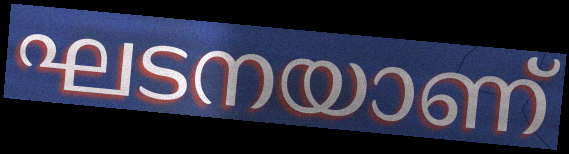
ഘടനയാണ്